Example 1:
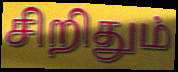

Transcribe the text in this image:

சிறிதும்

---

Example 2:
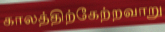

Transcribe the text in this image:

காலத்திற்கேற்றவாறு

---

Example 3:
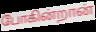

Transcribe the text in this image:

போகின்றான்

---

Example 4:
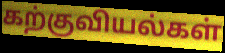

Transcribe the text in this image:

கற்குவியல்கள்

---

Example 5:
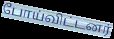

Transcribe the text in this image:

போய்விட்டனர்